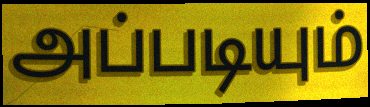
அப்படியும்